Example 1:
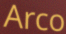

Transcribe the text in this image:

Arco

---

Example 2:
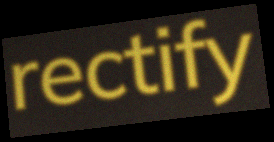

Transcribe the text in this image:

rectify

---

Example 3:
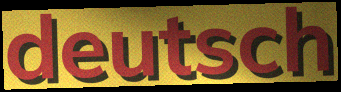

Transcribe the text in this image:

deutsch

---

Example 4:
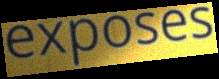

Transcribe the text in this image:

exposes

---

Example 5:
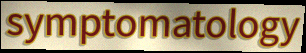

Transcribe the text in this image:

symptomatology